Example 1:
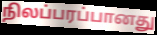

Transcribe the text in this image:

நிலப்பரப்பானது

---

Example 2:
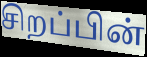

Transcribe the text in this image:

சிறப்பின்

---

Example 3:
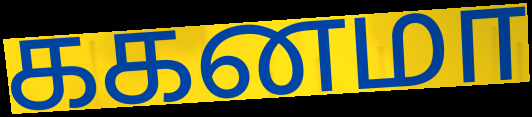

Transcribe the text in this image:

ககனமா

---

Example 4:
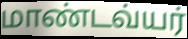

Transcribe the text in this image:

மாண்டவ்யர்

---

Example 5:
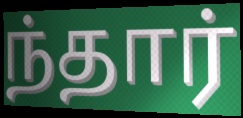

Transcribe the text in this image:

ந்தார்